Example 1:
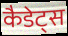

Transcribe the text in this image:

कैडेट्स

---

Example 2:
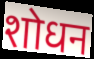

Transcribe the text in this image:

शोधन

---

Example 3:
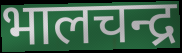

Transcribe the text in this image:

भालचन्द्र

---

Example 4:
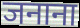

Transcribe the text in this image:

जनाना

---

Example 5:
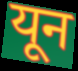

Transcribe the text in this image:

यून